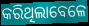
କରିଥିଲାବେଳେ